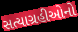
સત્યાગ્રહીઓનો